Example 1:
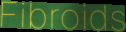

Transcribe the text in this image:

Fibroids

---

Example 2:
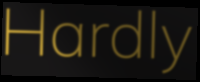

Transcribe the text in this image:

Hardly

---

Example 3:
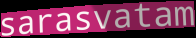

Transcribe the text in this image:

sarasvatam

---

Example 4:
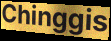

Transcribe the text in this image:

Chinggis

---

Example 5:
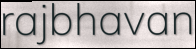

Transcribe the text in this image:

rajbhavan